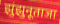
झुंझुनूताजा